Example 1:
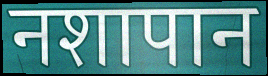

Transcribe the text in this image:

नशापान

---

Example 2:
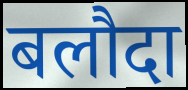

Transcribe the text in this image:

बलौदा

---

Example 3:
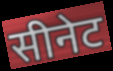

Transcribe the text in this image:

सीनेट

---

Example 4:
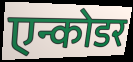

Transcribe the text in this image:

एन्कोडर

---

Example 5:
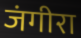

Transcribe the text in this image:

जंगीरा